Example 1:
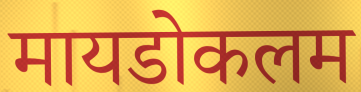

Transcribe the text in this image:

मायडोकलम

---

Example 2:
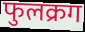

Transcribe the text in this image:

फुलक्रग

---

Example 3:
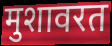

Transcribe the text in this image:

मुशावरत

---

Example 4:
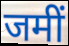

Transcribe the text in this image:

जमीं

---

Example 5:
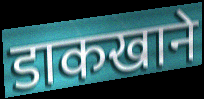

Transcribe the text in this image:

डाकखाने